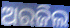
ଅରଜିଲ